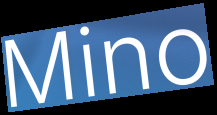
Mino